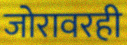
जोरावरही